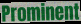
Prominent